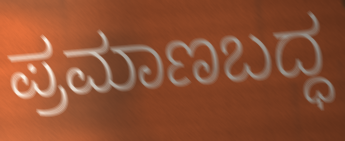
ಪ್ರಮಾಣಬದ್ಧ